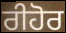
ਰੀਹੋਰ